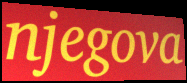
njegova